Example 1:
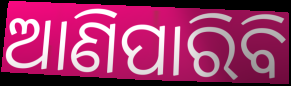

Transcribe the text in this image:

ଆଣିପାରିବି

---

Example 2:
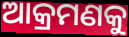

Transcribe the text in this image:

ଆକ୍ରମଣକୁ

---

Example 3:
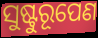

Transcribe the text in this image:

ସୁଷ୍ଟୁରୂପେଣ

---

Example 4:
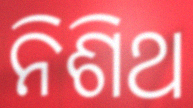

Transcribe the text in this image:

ନିଶିଥ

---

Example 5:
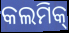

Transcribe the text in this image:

କଲମିକ୍